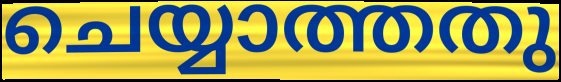
ചെയ്യാത്തതു